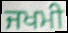
ਜਖਮੀ